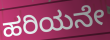
ಹರಿಯನೇ